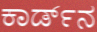
ಕಾರ್ಡ್‌ನ